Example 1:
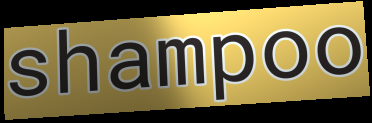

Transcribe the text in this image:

shampoo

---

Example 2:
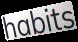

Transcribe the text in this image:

habits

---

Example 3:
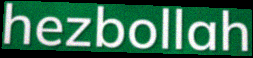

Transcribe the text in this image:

hezbollah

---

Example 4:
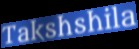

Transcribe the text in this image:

Takshshila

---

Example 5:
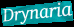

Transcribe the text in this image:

Drynaria